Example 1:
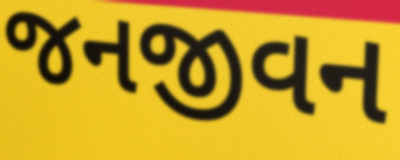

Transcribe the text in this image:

જનજીવન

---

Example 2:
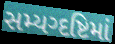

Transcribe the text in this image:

સમ્યગ્દષ્ટિમાં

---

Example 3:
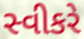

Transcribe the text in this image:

સ્વીકરે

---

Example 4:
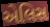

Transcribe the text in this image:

એલિસ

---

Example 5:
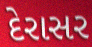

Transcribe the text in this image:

દેરાસર